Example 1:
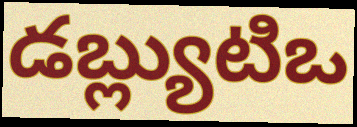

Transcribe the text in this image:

డబ్ల్యుటిఒ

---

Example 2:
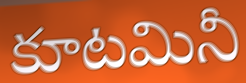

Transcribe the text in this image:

కూటమినీ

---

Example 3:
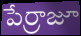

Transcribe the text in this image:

పేర్రాజూ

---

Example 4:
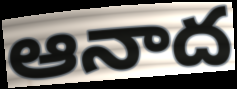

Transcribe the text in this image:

ఆనాద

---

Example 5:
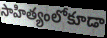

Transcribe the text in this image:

సాహిత్యంలోకూడా